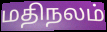
மதிநலம்